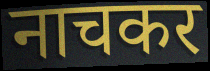
नाचकर